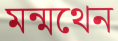
মন্মথেন